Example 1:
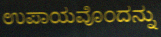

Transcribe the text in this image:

ಉಪಾಯವೊಂದನ್ನು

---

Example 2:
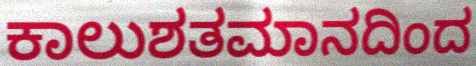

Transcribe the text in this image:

ಕಾಲುಶತಮಾನದಿಂದ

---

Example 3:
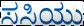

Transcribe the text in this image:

ಸಸಿಯು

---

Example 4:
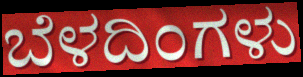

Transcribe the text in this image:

ಬೆಳದಿಂಗಳು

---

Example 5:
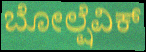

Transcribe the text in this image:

ಬೋಲ್ಷೆವಿಕ್